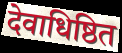
देवाधिष्ठित